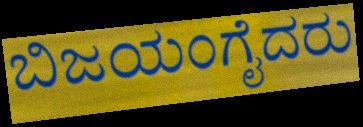
ಬಿಜಯಂಗೈದರು